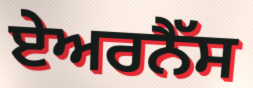
ਏਅਰਨੈੱਸ